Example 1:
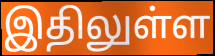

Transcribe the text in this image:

இதிலுள்ள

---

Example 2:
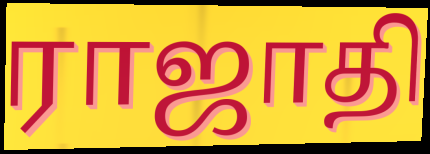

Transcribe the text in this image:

ராஜாதி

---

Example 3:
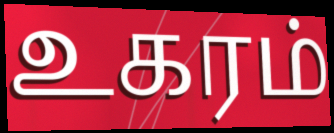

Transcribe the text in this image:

உகரம்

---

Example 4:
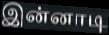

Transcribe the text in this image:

இன்னாடி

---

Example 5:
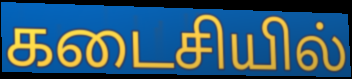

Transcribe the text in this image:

கடைசியில்